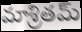
మాశ్రితమ్